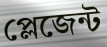
প্লেজেন্ট